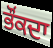
ਭੌਂਕਦਾ